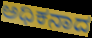
ಅಧಿಕನಾದ